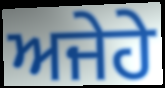
ਅਜੇਹੇ